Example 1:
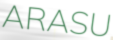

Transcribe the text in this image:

ARASU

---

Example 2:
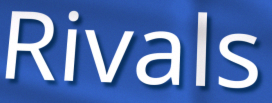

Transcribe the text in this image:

Rivals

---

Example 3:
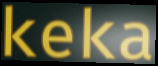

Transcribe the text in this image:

keka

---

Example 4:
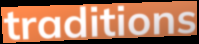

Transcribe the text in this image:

traditions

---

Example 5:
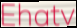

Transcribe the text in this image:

Ehatv